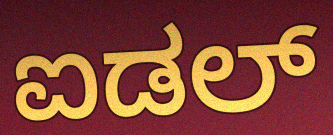
ಐಡಲ್